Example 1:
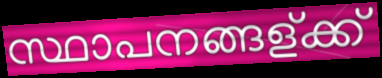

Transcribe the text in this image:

സ്ഥാപനങ്ങള്ക്ക്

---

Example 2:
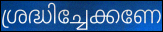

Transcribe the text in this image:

ശ്രദ്ധിച്ചേക്കണേ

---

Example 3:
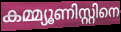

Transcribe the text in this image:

കമ്മ്യൂണിസ്റ്റിനെ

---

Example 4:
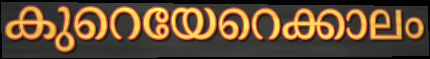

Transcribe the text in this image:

കുറെയേറെക്കാലം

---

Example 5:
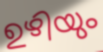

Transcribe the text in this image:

ഉഴിയും